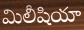
మిలీషియా